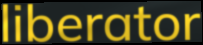
liberator